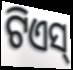
ଟିଏସ୍